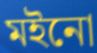
মইনো